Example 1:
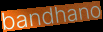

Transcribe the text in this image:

bandhano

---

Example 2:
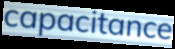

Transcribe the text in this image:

capacitance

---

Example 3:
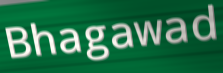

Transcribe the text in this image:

Bhagawad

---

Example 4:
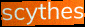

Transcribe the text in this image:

scythes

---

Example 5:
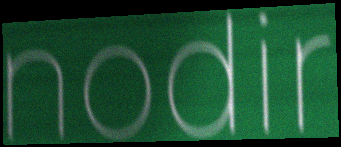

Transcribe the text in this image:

nodir